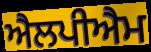
ਐਲਪੀਐਮ